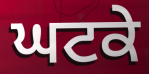
ਘਟਕੇ